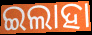
ଇଲାହା